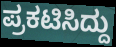
ಪ್ರಕಟಿಸಿದ್ದು